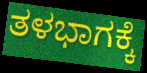
ತಳಭಾಗಕ್ಕೆ